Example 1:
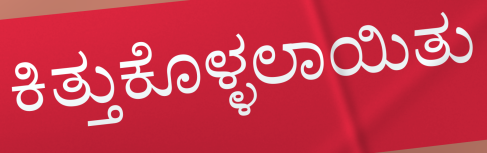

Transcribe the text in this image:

ಕಿತ್ತುಕೊಳ್ಳಲಾಯಿತು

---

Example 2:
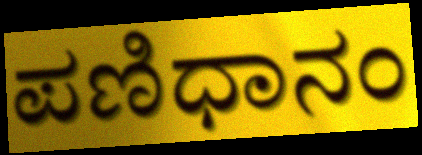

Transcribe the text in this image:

ಪಣಿಧಾನಂ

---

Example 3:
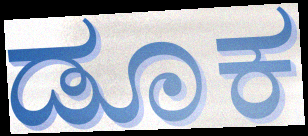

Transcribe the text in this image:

ಡೂಕ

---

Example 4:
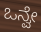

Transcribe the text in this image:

ಒನ್ವೇ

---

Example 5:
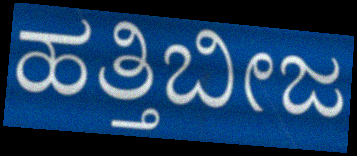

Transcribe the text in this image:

ಹತ್ತಿಬೀಜ